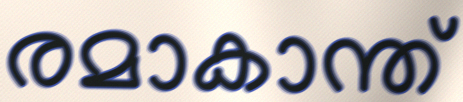
രമാകാന്ത്